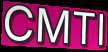
CMTI